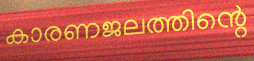
കാരണജലത്തിന്റെ